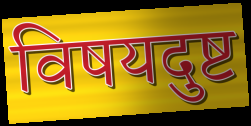
विषयदुष्ट